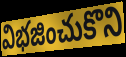
విభజించుకొని